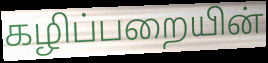
கழிப்பறையின்